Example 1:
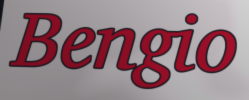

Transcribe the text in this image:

Bengio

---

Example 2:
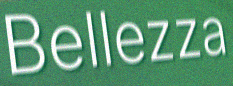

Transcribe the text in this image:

Bellezza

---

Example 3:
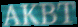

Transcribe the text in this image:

AKBT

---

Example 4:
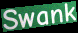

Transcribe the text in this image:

Swank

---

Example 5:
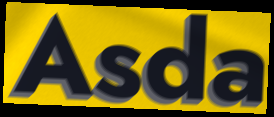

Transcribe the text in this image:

Asda